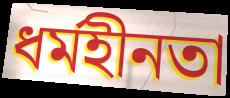
ধর্মহীনতা